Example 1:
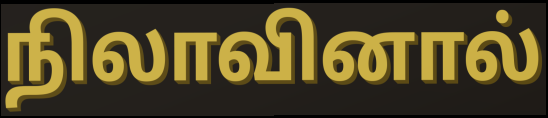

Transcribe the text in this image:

நிலாவினால்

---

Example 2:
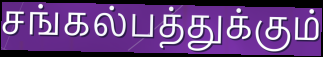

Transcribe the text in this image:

சங்கல்பத்துக்கும்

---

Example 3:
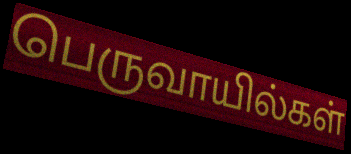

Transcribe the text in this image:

பெருவாயில்கள்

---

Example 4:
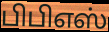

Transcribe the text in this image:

பிபிஎஸ்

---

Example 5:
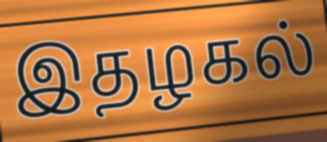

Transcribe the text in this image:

இதழகல்